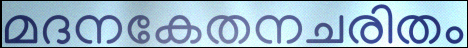
മദനകേതനചരിതം